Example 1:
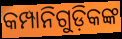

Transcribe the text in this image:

କମ୍ପାନିଗୁଡ଼ିକଙ୍କ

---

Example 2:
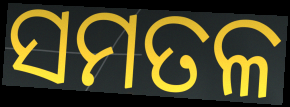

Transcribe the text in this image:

ସମତଳ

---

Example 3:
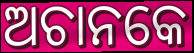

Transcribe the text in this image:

ଅଚାନକେ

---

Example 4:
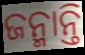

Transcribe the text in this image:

ଜନ୍ମାନ୍ତି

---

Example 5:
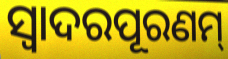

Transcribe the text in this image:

ସ୍ଵାଦରପୂରଣମ୍